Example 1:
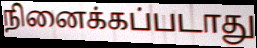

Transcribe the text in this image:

நினைக்கப்படாது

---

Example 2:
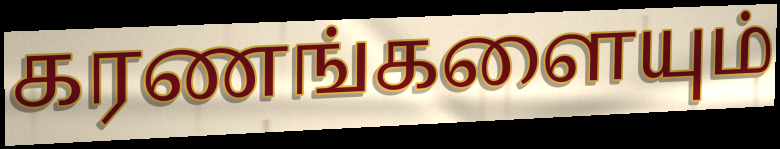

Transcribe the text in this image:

கரணங்களையும்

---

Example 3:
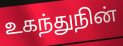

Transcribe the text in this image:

உகந்துநின்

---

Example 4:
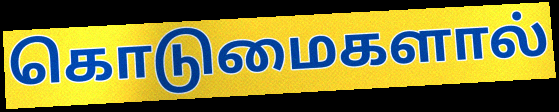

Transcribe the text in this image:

கொடுமைகளால்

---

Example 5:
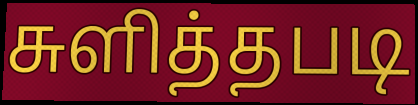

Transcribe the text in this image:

சுளித்தபடி